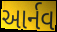
આર્નવ